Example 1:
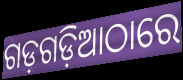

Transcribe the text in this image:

ଗଡ଼ଗଡ଼ିଆଠାରେ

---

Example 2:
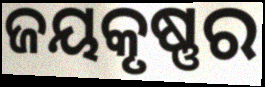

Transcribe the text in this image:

ଜୟକୃଷ୍ଣର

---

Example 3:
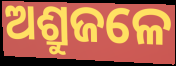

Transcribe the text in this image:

ଅଶ୍ରୁଜଳେ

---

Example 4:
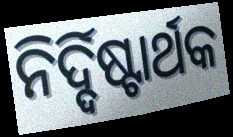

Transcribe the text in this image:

ନିର୍ଦ୍ଦିଷ୍ଟାର୍ଥକ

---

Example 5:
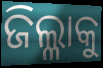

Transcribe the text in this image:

ଜିଲ୍ଳାକୁ